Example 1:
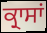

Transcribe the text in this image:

ਕ੍ਰਾਸਾਂ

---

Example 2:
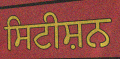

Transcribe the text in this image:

ਸਿਟੀਸ਼ਨ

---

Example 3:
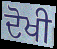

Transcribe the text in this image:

ਦੋਖੀ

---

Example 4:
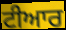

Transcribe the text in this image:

ਟੀਆਰ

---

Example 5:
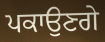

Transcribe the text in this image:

ਪਕਾਉਣਗੇ